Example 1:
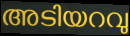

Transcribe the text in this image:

അടിയറവു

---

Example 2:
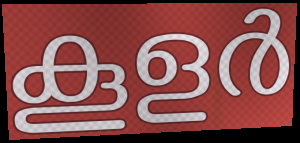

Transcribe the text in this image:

കൂളർ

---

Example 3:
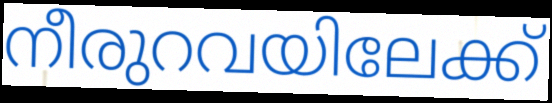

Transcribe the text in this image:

നീരുറവയിലേക്ക്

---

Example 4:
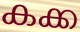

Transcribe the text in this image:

കക്ക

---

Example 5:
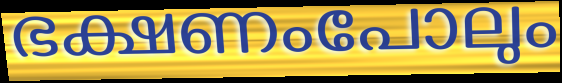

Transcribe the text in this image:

ഭക്ഷണംപോലും